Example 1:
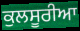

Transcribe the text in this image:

ਕੁਲਸੂਰੀਆ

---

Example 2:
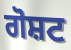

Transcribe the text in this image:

ਗੋਸ਼ਟ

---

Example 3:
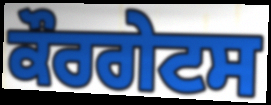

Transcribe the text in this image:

ਕੌਰਗੇਟਸ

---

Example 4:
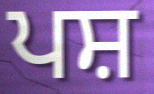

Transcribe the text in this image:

ਪਸ਼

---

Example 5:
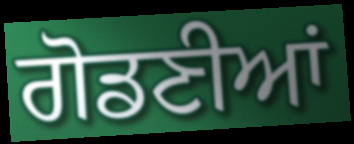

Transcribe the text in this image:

ਗੋਡਣੀਆਂ